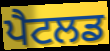
ਪੈਟਲਡ